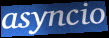
asyncio